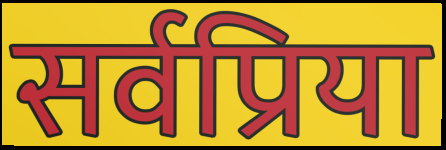
सर्वप्रिया